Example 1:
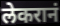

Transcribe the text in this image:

लेकरानं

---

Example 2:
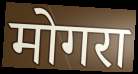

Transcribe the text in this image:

मोगरा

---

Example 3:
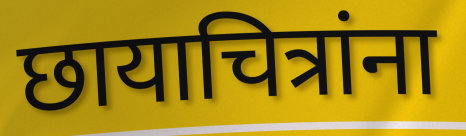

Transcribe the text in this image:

छायाचित्रांना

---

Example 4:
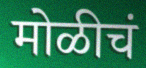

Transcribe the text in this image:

मोळीचं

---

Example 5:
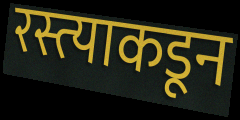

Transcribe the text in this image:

रस्त्याकडून